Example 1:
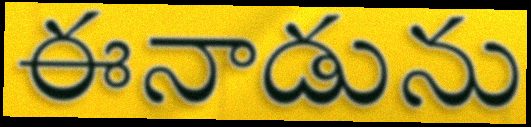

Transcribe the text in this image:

ఈనాడును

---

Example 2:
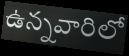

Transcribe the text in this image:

ఉన్నవారిలో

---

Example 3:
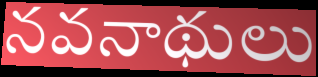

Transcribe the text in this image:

నవనాథులు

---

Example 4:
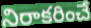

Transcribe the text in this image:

నిరాకరించే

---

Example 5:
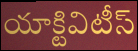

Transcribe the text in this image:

యాక్టివిటీస్